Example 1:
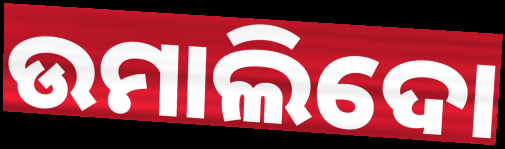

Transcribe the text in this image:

ଉମାଲିଦୋ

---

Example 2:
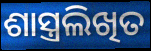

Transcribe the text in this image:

ଶାସ୍ତ୍ରଲିଖିତ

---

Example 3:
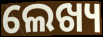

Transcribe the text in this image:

ଲେଖ୍ୟ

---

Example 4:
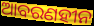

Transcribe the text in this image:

ଆବରଣହୀନ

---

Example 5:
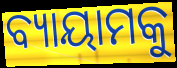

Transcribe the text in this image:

ବ୍ୟାୟାମକୁ